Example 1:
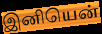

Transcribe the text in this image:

இனியென்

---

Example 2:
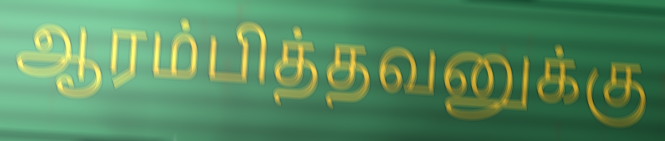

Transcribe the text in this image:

ஆரம்பித்தவனுக்கு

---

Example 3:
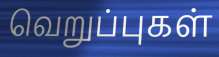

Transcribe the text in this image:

வெறுப்புகள்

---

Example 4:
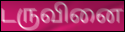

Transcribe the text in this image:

டருவினை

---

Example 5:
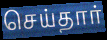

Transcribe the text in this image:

செய்தார்